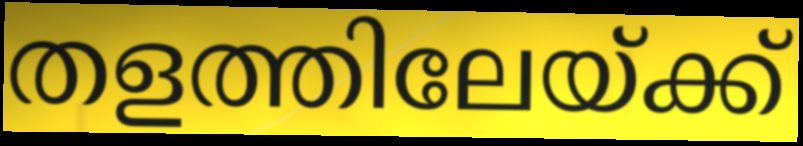
തളത്തിലേയ്ക്ക്